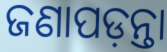
ଜଣାପଡ଼ନ୍ତା